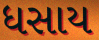
ધસાય